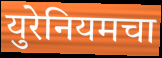
युरेनियमचा